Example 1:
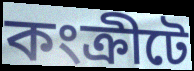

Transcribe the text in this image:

কংক্রীটে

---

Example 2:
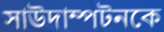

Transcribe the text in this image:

সাউদাম্পটনকে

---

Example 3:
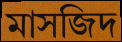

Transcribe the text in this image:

মাসজিদ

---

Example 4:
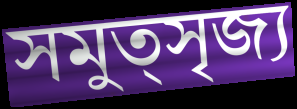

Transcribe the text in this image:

সমুত্সৃজ্য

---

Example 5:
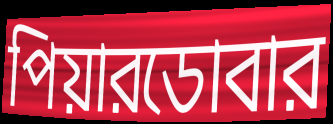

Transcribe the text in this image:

পিয়ারডোবার